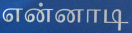
என்னாடி